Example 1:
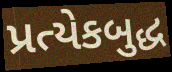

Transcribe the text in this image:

પ્રત્યેકબુદ્ધ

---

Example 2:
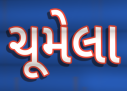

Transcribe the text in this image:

ચૂમેલા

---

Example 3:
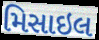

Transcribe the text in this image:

મિસાઇલ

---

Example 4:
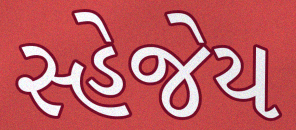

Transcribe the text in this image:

સ્હેજેય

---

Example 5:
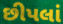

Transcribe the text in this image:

છીપલાં